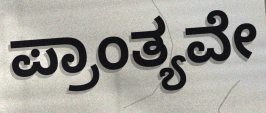
ಪ್ರಾಂತ್ಯವೇ